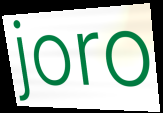
joro